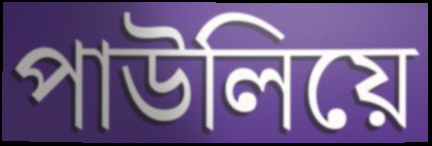
পাউলিয়ে